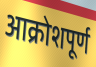
आक्रोशपूर्ण